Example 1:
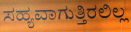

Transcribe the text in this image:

ಸಹ್ಯವಾಗುತ್ತಿರಲಿಲ್ಲ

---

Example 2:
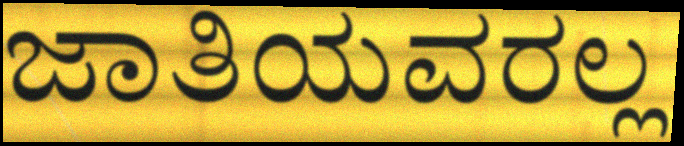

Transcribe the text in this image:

ಜಾತಿಯವರಲ್ಲ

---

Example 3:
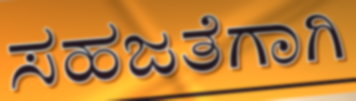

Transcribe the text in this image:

ಸಹಜತೆಗಾಗಿ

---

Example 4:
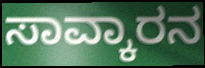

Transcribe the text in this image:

ಸಾವ್ಕಾರನ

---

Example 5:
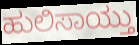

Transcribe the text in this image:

ಹುಲಿಸಾಯ್ತು